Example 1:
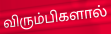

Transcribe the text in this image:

விரும்பிகளால்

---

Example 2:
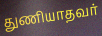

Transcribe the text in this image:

துணியாதவர்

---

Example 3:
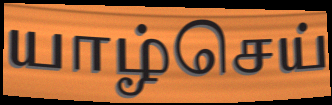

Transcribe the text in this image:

யாழ்செய்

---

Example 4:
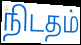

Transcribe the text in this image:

நிடதம்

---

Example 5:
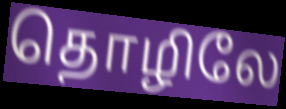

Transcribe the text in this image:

தொழிலே